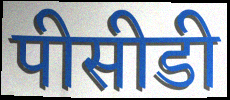
पीसीडी